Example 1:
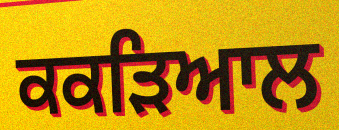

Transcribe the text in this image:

ਕਕੜਿਆਲ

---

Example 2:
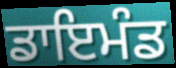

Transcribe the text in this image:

ਡਾਇਮੰਡ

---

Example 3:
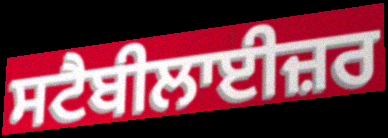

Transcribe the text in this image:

ਸਟੈਬੀਲਾਈਜ਼ਰ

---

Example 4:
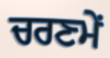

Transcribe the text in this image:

ਚਰਣਮੇਂ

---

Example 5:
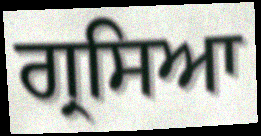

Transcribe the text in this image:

ਗ੍ਰਸਿਆ